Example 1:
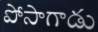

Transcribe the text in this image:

పోసాగాడు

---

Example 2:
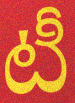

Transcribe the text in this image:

టీ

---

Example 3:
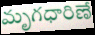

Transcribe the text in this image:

మృగధారిణే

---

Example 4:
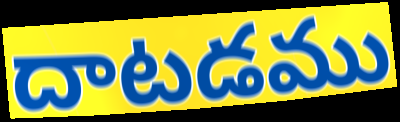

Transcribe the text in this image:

దాటడము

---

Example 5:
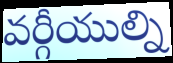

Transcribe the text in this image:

వర్గీయుల్ని